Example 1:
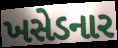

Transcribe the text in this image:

ખસેડનાર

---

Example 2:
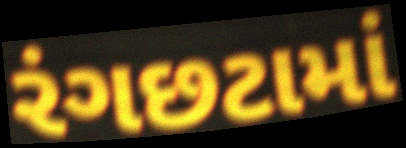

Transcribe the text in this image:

રંગછટામાં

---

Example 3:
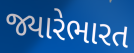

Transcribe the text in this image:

જ્યારેભારત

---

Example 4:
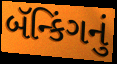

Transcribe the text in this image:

બૅન્કિંગનું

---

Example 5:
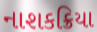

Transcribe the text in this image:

નાશકક્રિયા